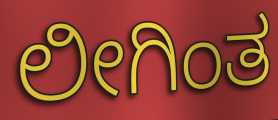
ಲೀಗಿಂತ